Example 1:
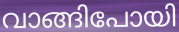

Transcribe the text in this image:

വാങ്ങിപോയി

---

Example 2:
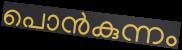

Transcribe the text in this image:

പൊൻകുന്നം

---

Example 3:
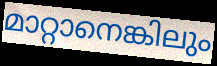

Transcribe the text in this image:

മാറ്റാനെങ്കിലും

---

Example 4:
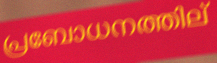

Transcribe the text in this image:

പ്രബോധനത്തില്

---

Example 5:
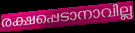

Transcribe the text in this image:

രക്ഷപ്പെടാനാവില്ല